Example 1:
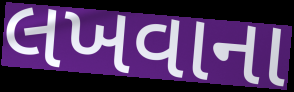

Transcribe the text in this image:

લખવાના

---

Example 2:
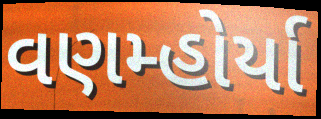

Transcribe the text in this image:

વણમ્હોર્યા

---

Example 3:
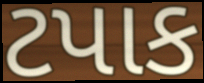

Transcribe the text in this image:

ટપાક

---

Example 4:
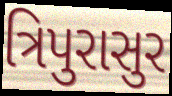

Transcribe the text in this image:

ત્રિપુરાસુર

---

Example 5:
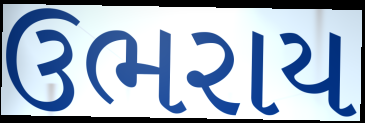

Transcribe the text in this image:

ઉભરાય